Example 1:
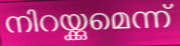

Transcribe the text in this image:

നിറയ്ക്കുമെന്ന്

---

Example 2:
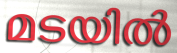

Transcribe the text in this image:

മടയിൽ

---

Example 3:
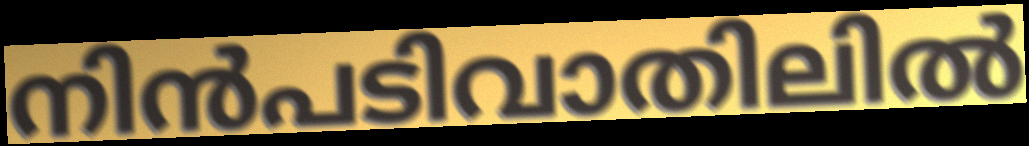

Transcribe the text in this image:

നിൻപടിവാതിലിൽ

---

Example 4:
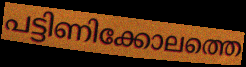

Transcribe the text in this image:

പട്ടിണിക്കോലത്തെ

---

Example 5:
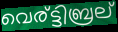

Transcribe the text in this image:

വെര്ട്ടിബ്രല്